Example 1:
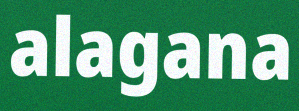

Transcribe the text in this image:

alagana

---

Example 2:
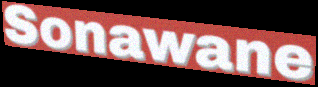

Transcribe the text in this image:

Sonawane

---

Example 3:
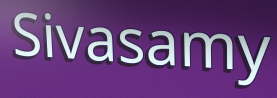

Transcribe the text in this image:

Sivasamy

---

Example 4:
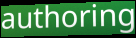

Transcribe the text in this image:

authoring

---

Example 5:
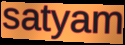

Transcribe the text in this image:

satyam